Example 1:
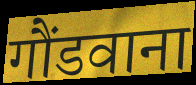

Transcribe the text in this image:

गौंडवाना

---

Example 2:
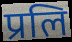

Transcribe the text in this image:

प्रलि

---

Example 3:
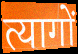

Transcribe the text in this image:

त्यागों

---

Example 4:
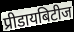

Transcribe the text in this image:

प्रीडायबिटीज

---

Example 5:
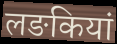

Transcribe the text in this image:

लङकियां